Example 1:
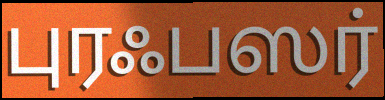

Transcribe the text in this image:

புரஃபஸர்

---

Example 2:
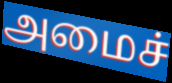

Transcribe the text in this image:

அமைச்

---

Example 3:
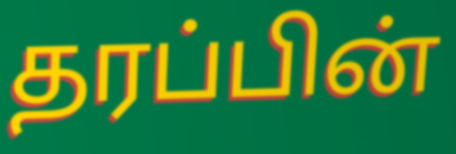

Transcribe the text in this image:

தரப்பின்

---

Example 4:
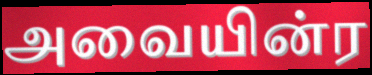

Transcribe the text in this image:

அவையின்ர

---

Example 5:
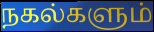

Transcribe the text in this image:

நகல்களும்